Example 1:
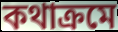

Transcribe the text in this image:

কথাক্রমে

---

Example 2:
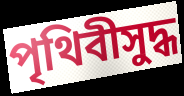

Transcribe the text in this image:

পৃথিবীসুদ্ধ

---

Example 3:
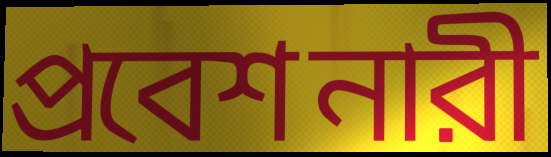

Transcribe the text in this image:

প্রবেশনারী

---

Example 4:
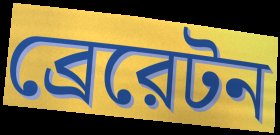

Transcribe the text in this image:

ব্রেরেটন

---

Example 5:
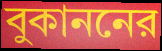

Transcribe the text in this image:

বুকাননের